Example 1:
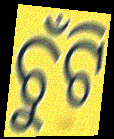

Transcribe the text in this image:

ଚୁଁଟି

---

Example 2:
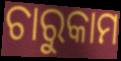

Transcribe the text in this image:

ଚାରୁକାମ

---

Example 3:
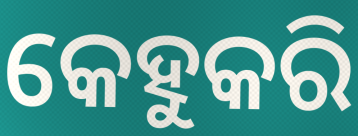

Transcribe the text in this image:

କେହୁକରି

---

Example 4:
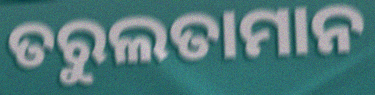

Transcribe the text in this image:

ତରୁଲତାମାନ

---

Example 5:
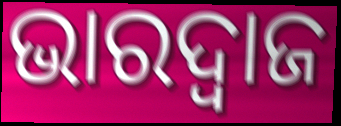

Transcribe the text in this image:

ଭାରଦ୍ୱାଜ